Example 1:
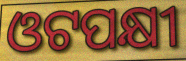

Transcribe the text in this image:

ଓଟପକ୍ଷୀ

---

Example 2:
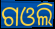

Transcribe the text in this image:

ଗଓଲି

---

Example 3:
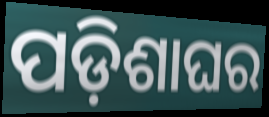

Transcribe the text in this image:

ପଡ଼ିଶାଘର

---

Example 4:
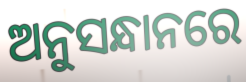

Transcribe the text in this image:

ଅନୁସନ୍ଧାନରେ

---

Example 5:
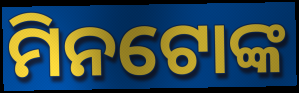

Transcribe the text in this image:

ମିନଟୋଙ୍କ